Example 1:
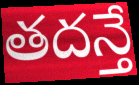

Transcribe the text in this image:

తదన్తే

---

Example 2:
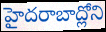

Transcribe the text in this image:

హైదరాబాద్లోని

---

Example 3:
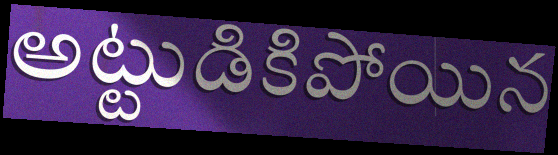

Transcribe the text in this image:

అట్టుడికిపోయిన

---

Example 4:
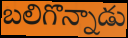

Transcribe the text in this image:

బలిగొన్నాడు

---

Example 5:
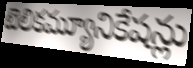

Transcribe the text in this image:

టెలికమ్యూనికేషన్లు